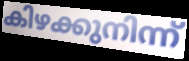
കിഴക്കുനിന്ന്